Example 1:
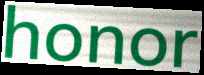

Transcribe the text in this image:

honor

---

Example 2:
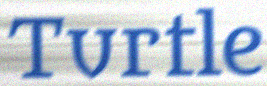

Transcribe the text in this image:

Turtle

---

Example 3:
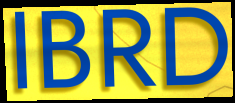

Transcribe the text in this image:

IBRD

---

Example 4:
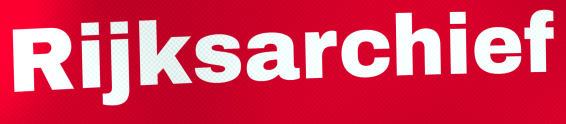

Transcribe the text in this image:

Rijksarchief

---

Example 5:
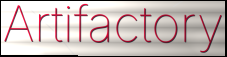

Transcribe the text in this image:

Artifactory